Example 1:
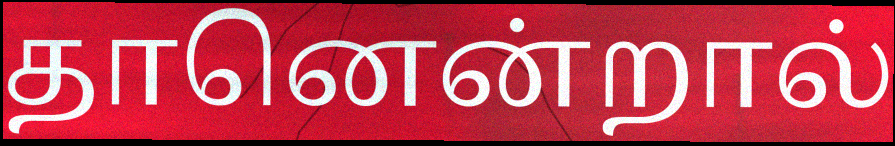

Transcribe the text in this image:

தானென்றால்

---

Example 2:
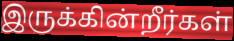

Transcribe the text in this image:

இருக்கின்றீர்கள்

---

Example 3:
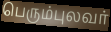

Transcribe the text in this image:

பெரும்புலவர்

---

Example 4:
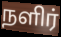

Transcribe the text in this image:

நளிர்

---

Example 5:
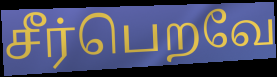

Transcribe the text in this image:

சீர்பெறவே